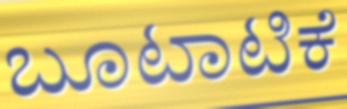
ಬೂಟಾಟಿಕೆ